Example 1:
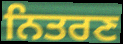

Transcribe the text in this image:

ਨਿਤਰਣ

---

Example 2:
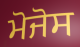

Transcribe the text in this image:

ਮੋਜੋਸ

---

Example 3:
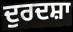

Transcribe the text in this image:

ਦੁਰਦਸ਼ਾ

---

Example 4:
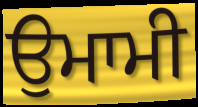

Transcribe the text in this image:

ਉਮਾਮੀ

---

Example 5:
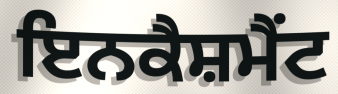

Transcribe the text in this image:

ਇਨਕੈਸ਼ਮੈਂਟ